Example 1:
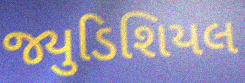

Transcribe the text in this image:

જ્યુડિશિયલ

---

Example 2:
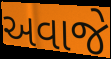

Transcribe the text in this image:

અવાજે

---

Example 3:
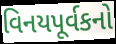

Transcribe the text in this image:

વિનયપૂર્વકનો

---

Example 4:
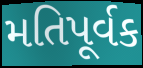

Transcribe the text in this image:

મતિપૂર્વક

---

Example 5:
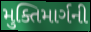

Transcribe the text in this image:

મુક્તિમાર્ગની